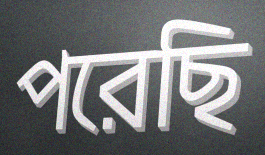
পরেছি